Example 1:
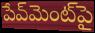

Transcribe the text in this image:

పేవ్‌మెంట్‌పై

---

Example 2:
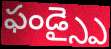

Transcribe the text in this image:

ఫండ్స్పై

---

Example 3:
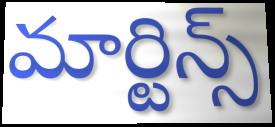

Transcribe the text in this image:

మార్టిన్స్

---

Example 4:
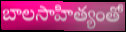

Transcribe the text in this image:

బాలసాహిత్యంతో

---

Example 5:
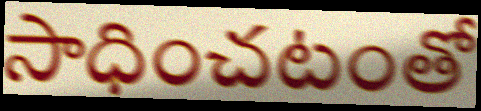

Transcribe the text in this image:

సాధించటంతో